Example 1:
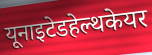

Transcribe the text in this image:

यूनाइटेडहेल्थकेयर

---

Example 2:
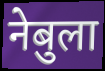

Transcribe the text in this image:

नेबुला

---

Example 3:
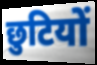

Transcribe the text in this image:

छुटियों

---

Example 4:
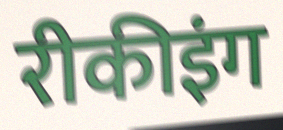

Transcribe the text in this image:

रीकीइंग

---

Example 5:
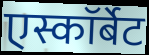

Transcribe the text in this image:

एस्कॉर्बेट